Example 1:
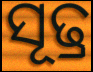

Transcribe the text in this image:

ସୂଢ୍ର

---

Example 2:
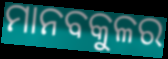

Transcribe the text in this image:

ମାନବକୁଳର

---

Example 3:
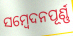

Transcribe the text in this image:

ସମ୍ବେଦନପୂର୍ଣ୍ଣ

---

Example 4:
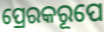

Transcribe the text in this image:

ପ୍ରେରକରୂପେ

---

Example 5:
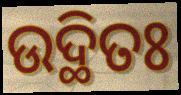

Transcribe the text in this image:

ଉଦ୍ଥିତଃ